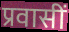
प्रवासीं